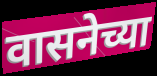
वासनेच्या